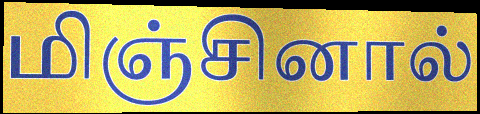
மிஞ்சினால்